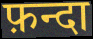
फ़न्दा